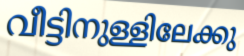
വീട്ടിനുള്ളിലേക്കു